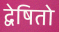
द्वेषितो